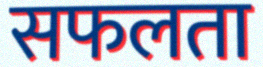
सफलता